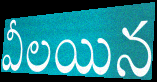
వీలయిన